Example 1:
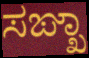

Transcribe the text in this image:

ಸಙ್ಖಾ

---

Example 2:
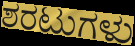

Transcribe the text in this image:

ಶರಟುಗಳು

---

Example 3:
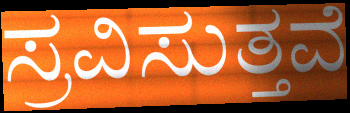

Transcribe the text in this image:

ಸ್ರವಿಸುತ್ತವೆ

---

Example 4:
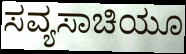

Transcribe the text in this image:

ಸವ್ಯಸಾಚಿಯೂ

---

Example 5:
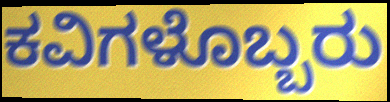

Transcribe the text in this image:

ಕವಿಗಳೊಬ್ಬರು